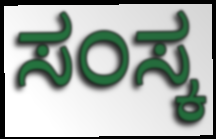
ಸಂಸ್ಕ